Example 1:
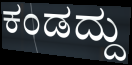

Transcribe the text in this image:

ಕಂಡದ್ದು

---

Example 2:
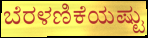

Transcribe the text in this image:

ಬೆರಳಣಿಕೆಯಷ್ಟು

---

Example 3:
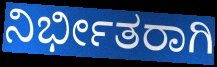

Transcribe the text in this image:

ನಿರ್ಭೀತರಾಗಿ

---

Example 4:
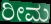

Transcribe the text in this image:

ರೀಮ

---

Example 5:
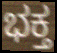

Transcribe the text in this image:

ಭಕ್ತ